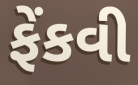
ફેંકવી